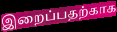
இறைப்பதற்காக